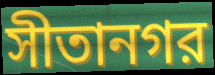
সীতানগর